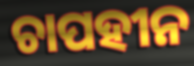
ଚାପହୀନ